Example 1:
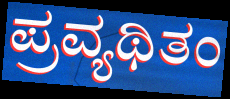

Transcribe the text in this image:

ಪ್ರವ್ಯಥಿತಂ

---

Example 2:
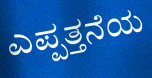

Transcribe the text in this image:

ಎಪ್ಪತ್ತನೆಯ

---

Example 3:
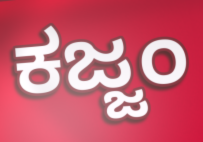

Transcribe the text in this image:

ಕಜ್ಜಂ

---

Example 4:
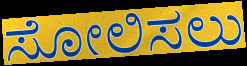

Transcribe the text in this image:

ಸೋಲಿಸಲು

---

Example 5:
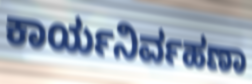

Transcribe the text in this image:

ಕಾರ್ಯನಿರ್ವಹಣಾ